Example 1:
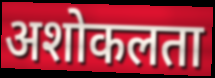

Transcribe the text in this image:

अशोकलता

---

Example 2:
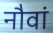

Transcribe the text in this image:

नौवां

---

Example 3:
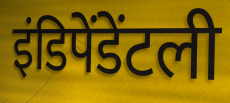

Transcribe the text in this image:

इंडिपेंडेंटली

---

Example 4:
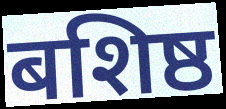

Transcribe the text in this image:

बशिष्ठ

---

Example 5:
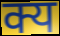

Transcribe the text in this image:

क्य